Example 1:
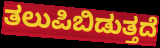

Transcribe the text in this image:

ತಲುಪಿಬಿಡುತ್ತದೆ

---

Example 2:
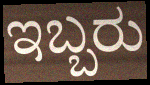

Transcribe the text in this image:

ಇಬ್ಬರು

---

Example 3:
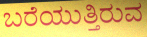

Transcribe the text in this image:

ಬರೆಯುತ್ತಿರುವ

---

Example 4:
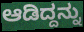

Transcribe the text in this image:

ಆಡಿದ್ದನ್ನು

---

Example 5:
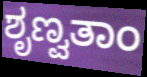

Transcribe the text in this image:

ಶೃಣ್ವತಾಂ